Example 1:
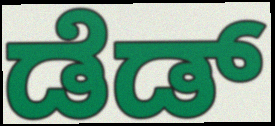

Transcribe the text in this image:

ಡೆಡ್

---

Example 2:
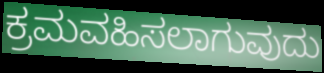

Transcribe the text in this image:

ಕ್ರಮವಹಿಸಲಾಗುವುದು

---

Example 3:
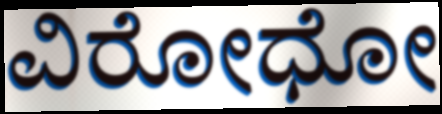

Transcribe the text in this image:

ವಿರೋಧೋ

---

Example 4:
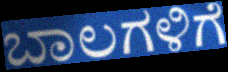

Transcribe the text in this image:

ಬಾಲಗಳಿಗೆ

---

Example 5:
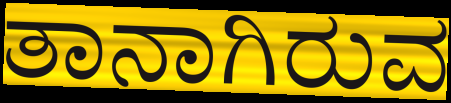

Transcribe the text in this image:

ತಾನಾಗಿರುವ